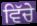
ਵਿੱਚੇ